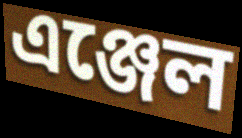
এঞ্জেল